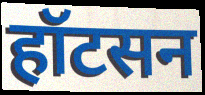
हॉटसन